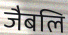
जैबलि